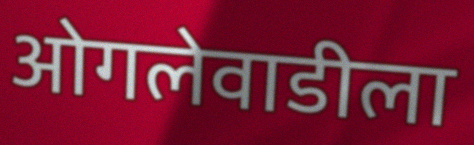
ओगलेवाडीला